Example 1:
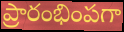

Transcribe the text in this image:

ప్రారంభింపగా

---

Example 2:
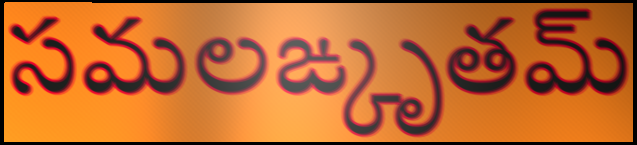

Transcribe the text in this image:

సమలఙ్కృతమ్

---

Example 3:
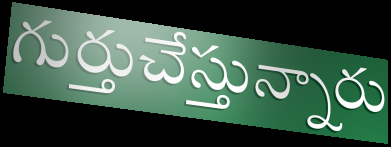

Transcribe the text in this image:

గుర్తుచేస్తున్నారు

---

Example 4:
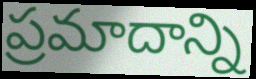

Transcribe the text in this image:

ప్రమాదాన్ని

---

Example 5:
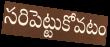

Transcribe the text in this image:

సరిపెట్టుకోవటం